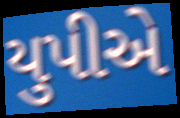
યુપીએ